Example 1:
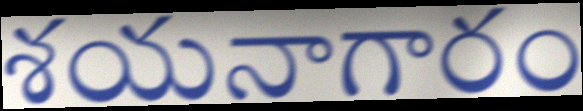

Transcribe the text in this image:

శయనాగారం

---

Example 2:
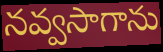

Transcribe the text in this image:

నవ్వసాగాను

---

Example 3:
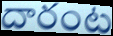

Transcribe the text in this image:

దారంట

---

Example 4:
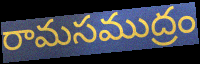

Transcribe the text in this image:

రామసముద్రం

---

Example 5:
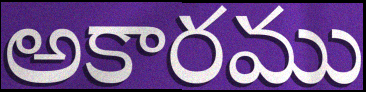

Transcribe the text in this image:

అకారము